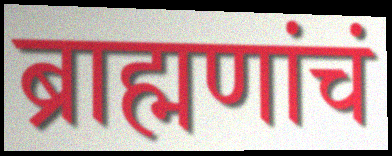
ब्राह्मणांचं